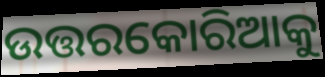
ଉତ୍ତରକୋରିଆକୁ